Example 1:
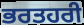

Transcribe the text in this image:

ਭਰਤਹਰੀ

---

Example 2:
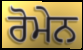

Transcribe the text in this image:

ਰੋਮੇਨ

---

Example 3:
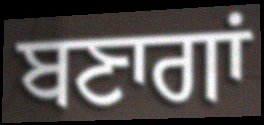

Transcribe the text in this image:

ਬਣਾਗਾਂ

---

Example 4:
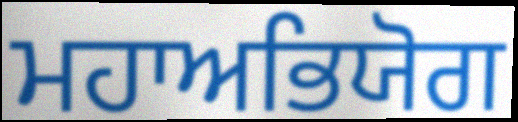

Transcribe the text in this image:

ਮਹਾਅਭਿਯੋਗ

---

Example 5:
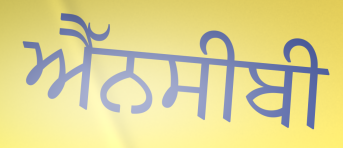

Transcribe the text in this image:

ਐੱਨਸੀਬੀ